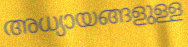
അധ്യായങ്ങളുള്ള